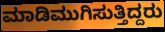
ಮಾಡಿಮುಗಿಸುತ್ತಿದ್ದರು